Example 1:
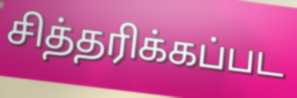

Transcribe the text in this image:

சித்தரிக்கப்பட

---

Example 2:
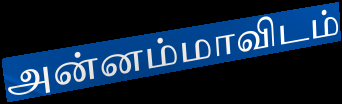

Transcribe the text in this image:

அன்னம்மாவிடம்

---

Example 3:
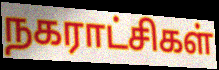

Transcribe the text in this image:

நகராட்சிகள்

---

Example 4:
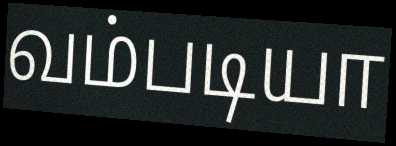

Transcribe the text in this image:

வம்படியா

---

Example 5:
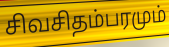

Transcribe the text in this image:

சிவசிதம்பரமும்